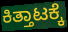
ಕಿತ್ತಾಟಕ್ಕೆ